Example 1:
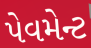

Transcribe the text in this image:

પેવમેન્ટ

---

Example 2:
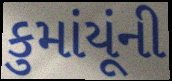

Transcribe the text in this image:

કુમાંયૂંની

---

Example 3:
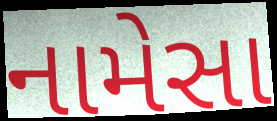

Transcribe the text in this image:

નામેસા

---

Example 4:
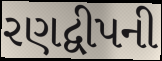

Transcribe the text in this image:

રણદ્વીપની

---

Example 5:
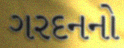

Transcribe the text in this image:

ગરદનનો